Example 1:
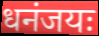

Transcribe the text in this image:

धनंजयः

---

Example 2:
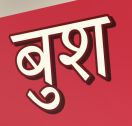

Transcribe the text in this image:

बुश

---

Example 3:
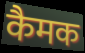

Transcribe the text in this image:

कैमक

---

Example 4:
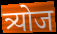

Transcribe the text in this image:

त्र्योज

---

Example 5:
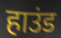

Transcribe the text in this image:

हाउंड